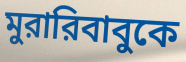
মুরারিবাবুকে